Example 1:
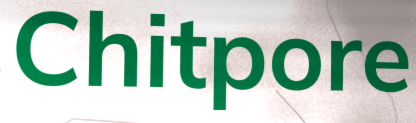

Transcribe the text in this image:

Chitpore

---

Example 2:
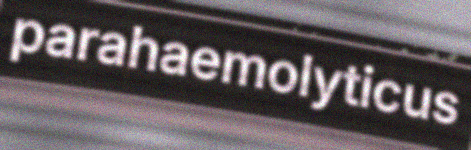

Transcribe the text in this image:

parahaemolyticus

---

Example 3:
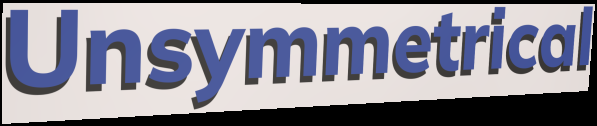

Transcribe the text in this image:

Unsymmetrical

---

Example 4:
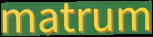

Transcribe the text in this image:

matrum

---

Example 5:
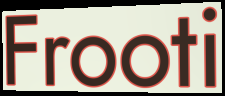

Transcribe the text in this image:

Frooti